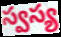
స్వస్య